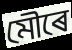
মৌৰে